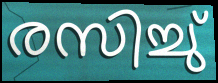
രസിച്ചു്